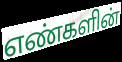
எண்களின்